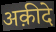
अक़ीदे